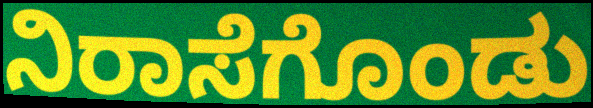
ನಿರಾಸೆಗೊಂಡು